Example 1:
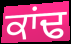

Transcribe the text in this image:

ਕਾਂਢ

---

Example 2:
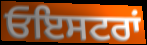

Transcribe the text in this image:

ਓਇਸਟਰਾਂ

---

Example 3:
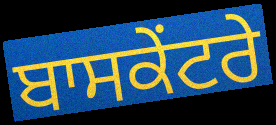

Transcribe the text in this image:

ਬਾਸਕੇਂਟਰੇ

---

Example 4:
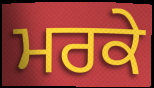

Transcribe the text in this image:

ਮਰਕੇ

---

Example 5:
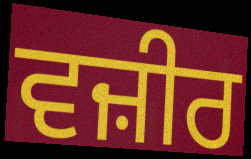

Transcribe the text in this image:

ਵਜ਼ੀਰ